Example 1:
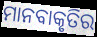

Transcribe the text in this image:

ମାନବାକୃତିର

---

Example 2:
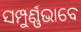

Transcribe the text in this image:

ସମ୍ପୁର୍ଣ୍ଣଭାବେ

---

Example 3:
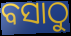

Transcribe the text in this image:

ବସାଠୁ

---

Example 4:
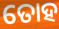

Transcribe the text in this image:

ତୋହ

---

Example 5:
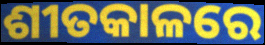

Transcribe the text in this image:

ଶୀତକାଳରେ